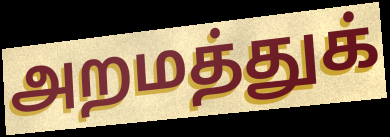
அறமத்துக்